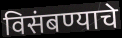
विसंबण्याचे